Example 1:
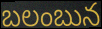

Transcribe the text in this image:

బలంబున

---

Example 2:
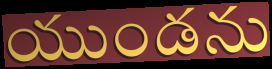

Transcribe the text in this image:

యుండను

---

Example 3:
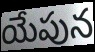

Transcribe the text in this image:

యేపున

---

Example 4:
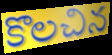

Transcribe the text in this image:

కొలచిన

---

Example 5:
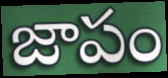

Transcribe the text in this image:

జాపం